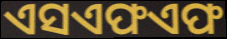
ଏସଏଫଏଫ